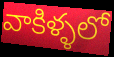
వాకిళ్ళలో